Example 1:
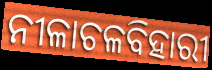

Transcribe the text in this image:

ନୀଳାଚଳବିହାରୀ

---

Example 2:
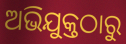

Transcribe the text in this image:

ଅଭିଯୁକ୍ତଠାରୁ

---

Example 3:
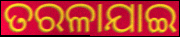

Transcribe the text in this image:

ତରଳାଯାଇ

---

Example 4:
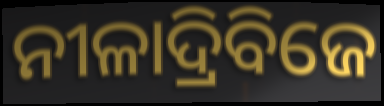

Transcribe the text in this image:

ନୀଳାଦ୍ରିବିଜେ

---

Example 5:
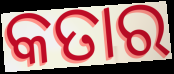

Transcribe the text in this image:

କତାର